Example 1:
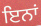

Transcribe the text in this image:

ਇਨਾਂ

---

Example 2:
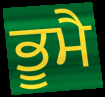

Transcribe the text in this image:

ਭੂਮੈ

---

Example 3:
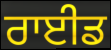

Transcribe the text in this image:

ਰਾਈਡ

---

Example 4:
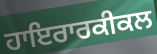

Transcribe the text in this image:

ਹਾਇਰਾਰਕੀਕਲ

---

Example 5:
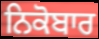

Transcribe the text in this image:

ਨਿਕੋਬਾਰ